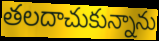
తలదాచుకున్నాను